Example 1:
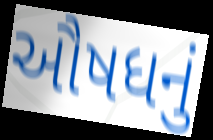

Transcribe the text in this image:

ઔષધનું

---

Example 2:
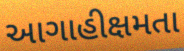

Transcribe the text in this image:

આગાહીક્ષમતા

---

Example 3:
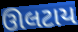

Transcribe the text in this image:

ઊલટાય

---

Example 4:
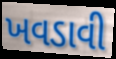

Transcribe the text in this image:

ખવડાવી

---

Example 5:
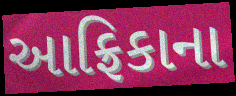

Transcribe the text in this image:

આફ્રિકાના